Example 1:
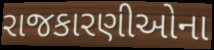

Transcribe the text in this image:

રાજકારણીઓના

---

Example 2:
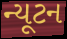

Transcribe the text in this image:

ન્યૂટન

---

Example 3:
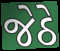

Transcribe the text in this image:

જેઠે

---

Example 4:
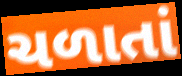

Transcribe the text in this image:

ચળાતાં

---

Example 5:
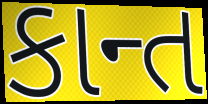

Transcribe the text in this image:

કાન્ત